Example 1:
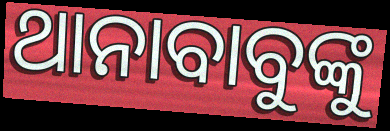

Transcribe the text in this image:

ଥାନାବାବୁଙ୍କୁ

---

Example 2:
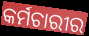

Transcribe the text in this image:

କର୍ମଚାରୀର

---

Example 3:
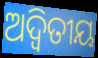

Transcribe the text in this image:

ଅଦ୍ଵିତୀୟ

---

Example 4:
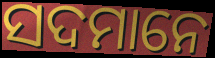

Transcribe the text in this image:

ସଦମାନେ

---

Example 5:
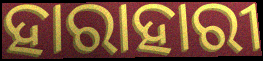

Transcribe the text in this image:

ହାରାହାରୀ